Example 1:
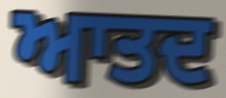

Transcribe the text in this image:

ਆਤਦ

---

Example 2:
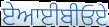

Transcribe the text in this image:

ਏਆਈਬੀਓਏ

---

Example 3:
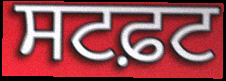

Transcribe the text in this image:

ਸਟਫ਼ਟ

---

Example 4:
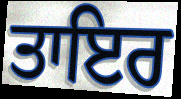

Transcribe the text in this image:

ਤਾਇਰ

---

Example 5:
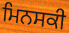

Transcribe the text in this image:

ਮਿਨਸਕੀ